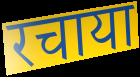
रचाया